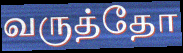
வருத்தோ